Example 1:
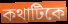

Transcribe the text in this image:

কথাটিকে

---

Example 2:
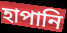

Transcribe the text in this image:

হাপানি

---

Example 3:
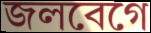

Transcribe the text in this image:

জলবেগে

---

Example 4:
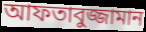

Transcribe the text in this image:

আফতাবুজ্জামান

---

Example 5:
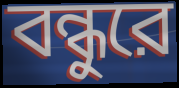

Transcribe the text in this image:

বন্ধুরে